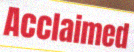
Acclaimed